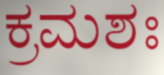
ಕ್ರಮಶಃ